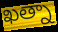
ఖత్నా